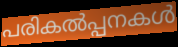
പരികൽപ്പനകൾ